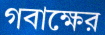
গবাক্ষের